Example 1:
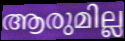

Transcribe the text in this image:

ആരുമില്ല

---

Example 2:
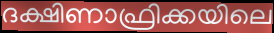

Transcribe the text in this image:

ദക്ഷിണാഫ്രിക്കയിലെ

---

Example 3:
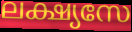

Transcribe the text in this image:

ലക്ഷ്യസേ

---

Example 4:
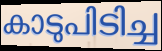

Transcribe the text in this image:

കാടുപിടിച്ച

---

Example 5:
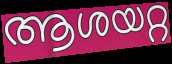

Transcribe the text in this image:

ആശയറ്റ